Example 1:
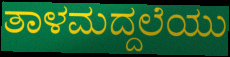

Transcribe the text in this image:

ತಾಳಮದ್ದಲೆಯು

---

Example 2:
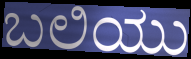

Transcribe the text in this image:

ಬಲಿಯು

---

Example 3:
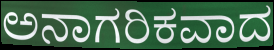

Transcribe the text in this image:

ಅನಾಗರಿಕವಾದ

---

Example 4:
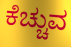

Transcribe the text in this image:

ಕೆಚ್ಚುವ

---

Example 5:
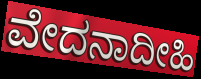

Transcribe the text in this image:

ವೇದನಾದೀಹಿ